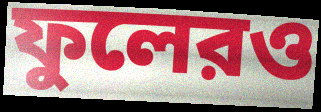
ফুলেরও